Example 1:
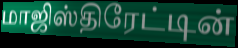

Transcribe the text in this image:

மாஜிஸ்திரேட்டின்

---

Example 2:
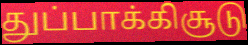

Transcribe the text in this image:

துப்பாக்கிசூடு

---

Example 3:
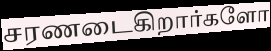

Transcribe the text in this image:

சரணடைகிறார்களோ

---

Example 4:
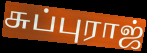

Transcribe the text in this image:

சுப்புராஜ்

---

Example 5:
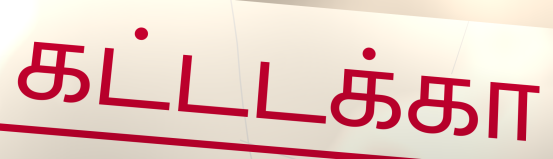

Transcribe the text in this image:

கட்டடக்கா